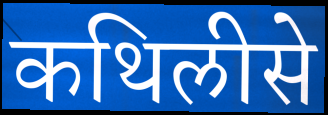
कथिलीसे